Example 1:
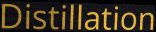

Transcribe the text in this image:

Distillation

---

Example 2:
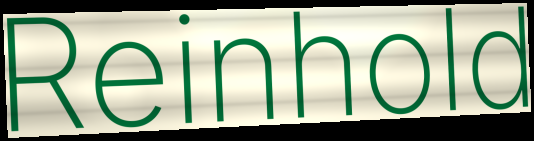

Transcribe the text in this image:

Reinhold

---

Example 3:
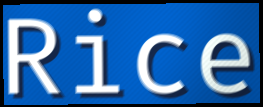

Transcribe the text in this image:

Rice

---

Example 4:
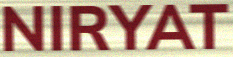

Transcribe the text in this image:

NIRYAT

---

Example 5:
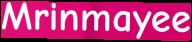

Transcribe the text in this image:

Mrinmayee